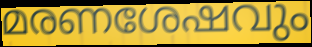
മരണശേഷവും